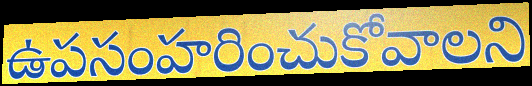
ఉపసంహరించుకోవాలని